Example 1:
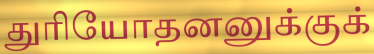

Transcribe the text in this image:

துரியோதனனுக்குக்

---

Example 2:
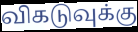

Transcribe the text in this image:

விகடுவுக்கு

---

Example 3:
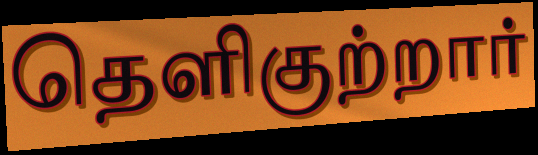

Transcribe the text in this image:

தெளிகுற்றார்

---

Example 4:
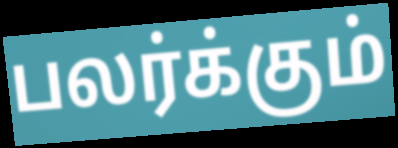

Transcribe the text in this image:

பலர்க்கும்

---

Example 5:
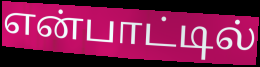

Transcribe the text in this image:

என்பாட்டில்